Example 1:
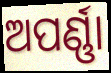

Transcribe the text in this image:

ଅପର୍ଣ୍ଣା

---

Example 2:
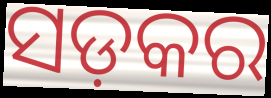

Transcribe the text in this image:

ସଡ଼କର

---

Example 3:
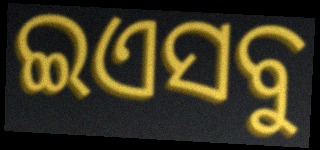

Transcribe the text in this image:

ଇଏସବୁ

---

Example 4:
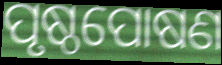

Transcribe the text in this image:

ପୃଷ୍ଠପୋଷଣ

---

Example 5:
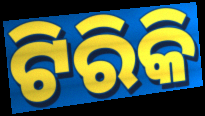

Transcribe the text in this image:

ଟିରିକି